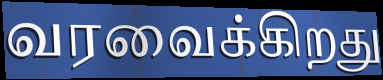
வரவைக்கிறது